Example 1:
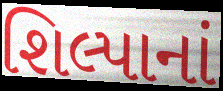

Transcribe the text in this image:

શિલ્પાનાં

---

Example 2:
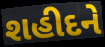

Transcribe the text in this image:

શહીદને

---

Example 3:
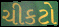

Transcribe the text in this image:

ચીકટો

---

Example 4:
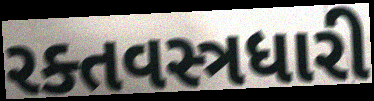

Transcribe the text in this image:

રક્તવસ્ત્રધારી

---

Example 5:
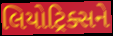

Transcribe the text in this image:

લિયોટ્રિક્સને